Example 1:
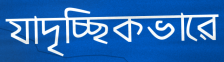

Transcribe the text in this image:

যাদৃচ্ছিকভাৱে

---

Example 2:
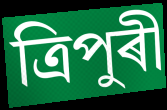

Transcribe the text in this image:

ত্ৰিপুৰী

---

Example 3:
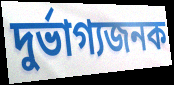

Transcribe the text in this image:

দুৰ্ভাগ্যজনক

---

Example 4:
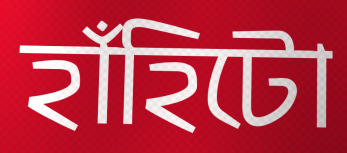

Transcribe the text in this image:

হাঁহিটো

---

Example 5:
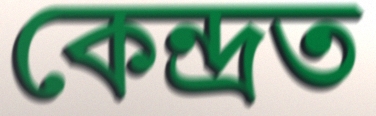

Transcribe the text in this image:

কেন্দ্ৰত